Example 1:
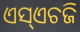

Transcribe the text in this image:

ଏସ୍ଏଚଜି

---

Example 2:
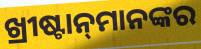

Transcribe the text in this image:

ଖ୍ରୀଷ୍ଟାନ୍‌ମାନଙ୍କର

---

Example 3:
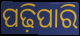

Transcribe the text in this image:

ପଢ଼ିପାରି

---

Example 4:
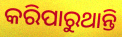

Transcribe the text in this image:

କରିପାରୁଥାନ୍ତି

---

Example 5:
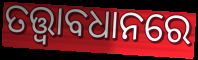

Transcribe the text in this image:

ତତ୍ତ୍ୱାବଧାନରେ